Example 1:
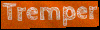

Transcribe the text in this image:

Tremper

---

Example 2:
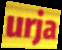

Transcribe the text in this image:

urja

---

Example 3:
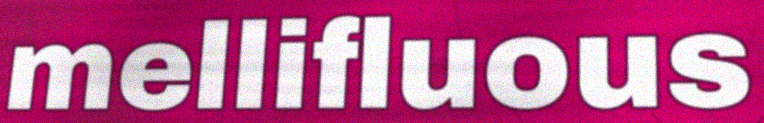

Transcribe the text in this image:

mellifluous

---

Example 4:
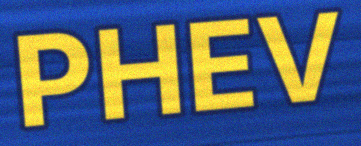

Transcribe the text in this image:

PHEV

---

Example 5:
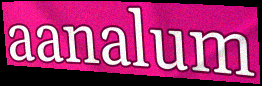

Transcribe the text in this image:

aanalum